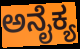
ಅನೈಕ್ಯ